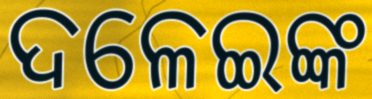
ଦଳେଇଙ୍କ